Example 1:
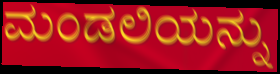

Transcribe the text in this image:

ಮಂಡಲಿಯನ್ನು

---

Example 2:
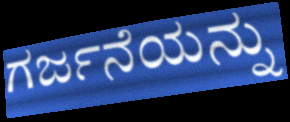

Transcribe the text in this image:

ಗರ್ಜನೆಯನ್ನು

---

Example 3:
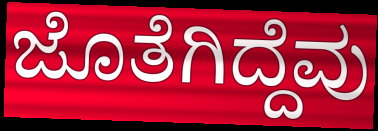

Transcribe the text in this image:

ಜೊತೆಗಿದ್ದೆವು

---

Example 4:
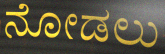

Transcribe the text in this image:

ನೋಡಲು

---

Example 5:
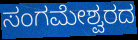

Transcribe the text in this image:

ಸಂಗಮೇಶ್ವರದ